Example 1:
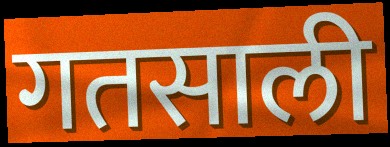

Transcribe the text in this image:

गतसाली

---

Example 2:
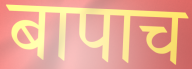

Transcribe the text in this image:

बापाच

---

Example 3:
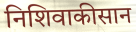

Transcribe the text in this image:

निशिवाकीसान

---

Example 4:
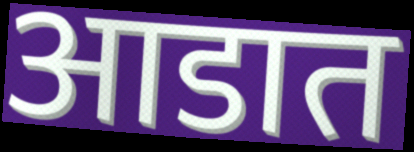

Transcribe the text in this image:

आडात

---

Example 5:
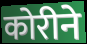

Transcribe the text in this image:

कोरीने